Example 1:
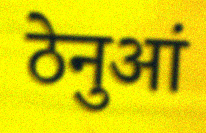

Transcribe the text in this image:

ठेनुआं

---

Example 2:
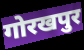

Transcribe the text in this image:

गोरखपुर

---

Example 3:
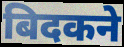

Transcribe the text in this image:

बिदकने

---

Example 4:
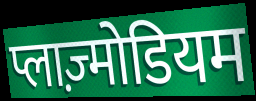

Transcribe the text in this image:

प्लाज़्मोडियम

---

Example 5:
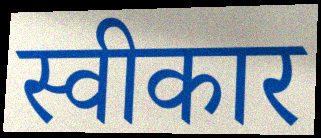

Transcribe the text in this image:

स्वीकार